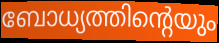
ബോധ്യത്തിന്റെയും